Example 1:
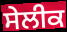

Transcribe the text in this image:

ਸੇਲੀਕ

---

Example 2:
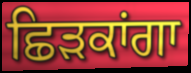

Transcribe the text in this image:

ਛਿੜਕਾਂਗਾ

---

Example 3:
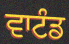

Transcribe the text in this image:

ਵਾਟੰਡ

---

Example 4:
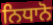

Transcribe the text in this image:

ਨਿਧਾਨੋ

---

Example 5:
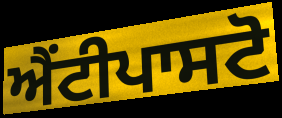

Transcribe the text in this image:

ਐਂਟੀਪਾਸਟੋ